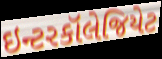
ઇન્ટરકૉલેજિયેટ